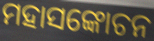
ମହାସଙ୍କୋଚନ